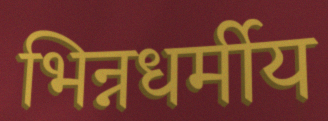
भिन्नधर्मीय